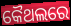
କୈଥଲରେ